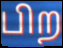
பிற